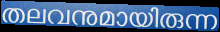
തലവനുമായിരുന്ന